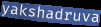
yakshadruva